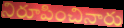
నిరూపించినారు